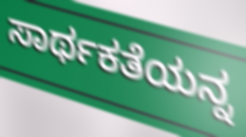
ಸಾರ್ಥಕತೆಯನ್ನ